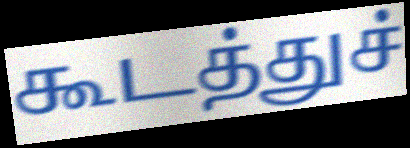
கூடத்துச்